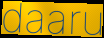
daaru